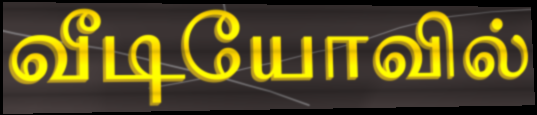
வீடியோவில்